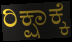
ರಿಕ್ಷಾಕ್ಕೆ